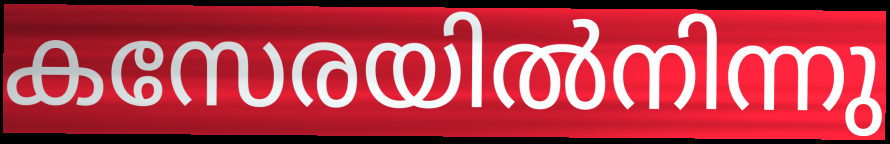
കസേരയിൽനിന്നു